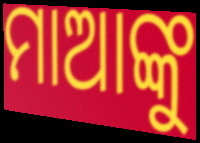
ମାଆଙ୍କୁ